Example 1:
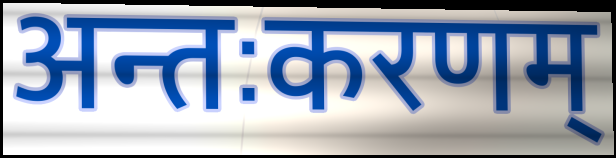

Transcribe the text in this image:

अन्तःकरणम्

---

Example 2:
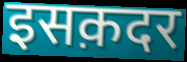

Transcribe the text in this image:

इसक़दर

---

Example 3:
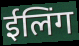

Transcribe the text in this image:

ईलिंग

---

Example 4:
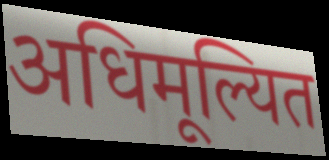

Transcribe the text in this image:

अधिमूल्यित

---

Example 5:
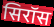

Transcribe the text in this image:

सिरॉस